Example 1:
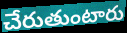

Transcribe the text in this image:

చేరుతుంటారు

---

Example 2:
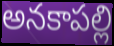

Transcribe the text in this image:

అనకాపల్లి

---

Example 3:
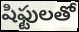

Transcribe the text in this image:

షిఫ్టులతో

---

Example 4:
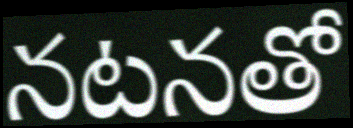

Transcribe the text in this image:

నటనతో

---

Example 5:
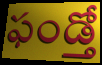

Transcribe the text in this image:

ఫండ్తో